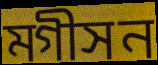
মগীসন